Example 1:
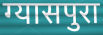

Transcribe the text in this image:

ग्यासपुरा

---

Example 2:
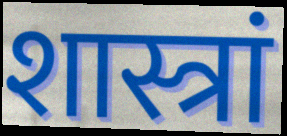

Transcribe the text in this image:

शास्त्रां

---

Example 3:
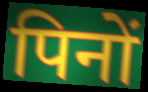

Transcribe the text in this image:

पिनों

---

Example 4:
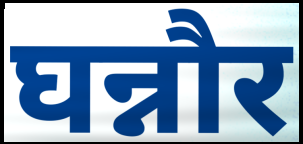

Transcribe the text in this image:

घन्नौर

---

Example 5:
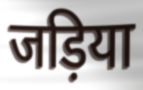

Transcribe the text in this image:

जड़िया